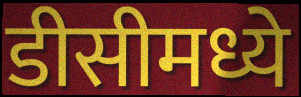
डीसीमध्ये